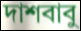
দাশবাবু